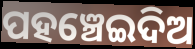
ପହଞ୍ଚେଇଦିଅ